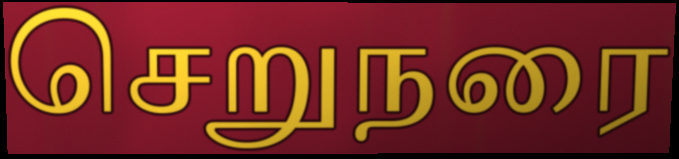
செறுநரை